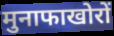
मुनाफाखोरों